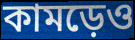
কামড়েও